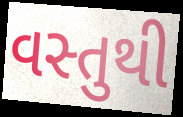
વસ્તુથી